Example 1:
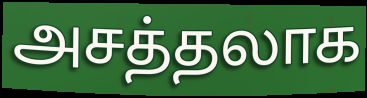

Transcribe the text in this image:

அசத்தலாக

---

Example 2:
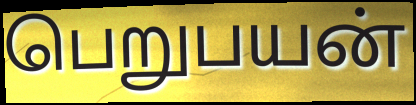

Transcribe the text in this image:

பெறுபயன்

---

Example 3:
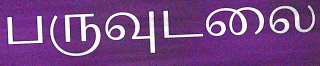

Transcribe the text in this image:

பருவுடலை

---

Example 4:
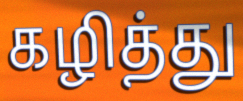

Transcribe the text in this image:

கழித்து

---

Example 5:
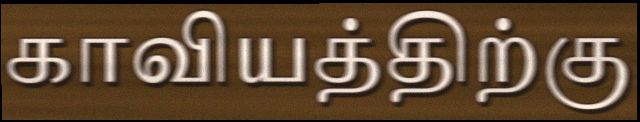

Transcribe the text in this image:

காவியத்திற்கு